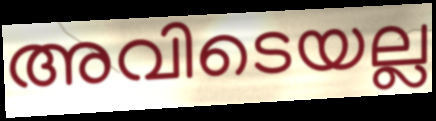
അവിടെയല്ല